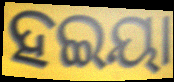
ହଇୟା